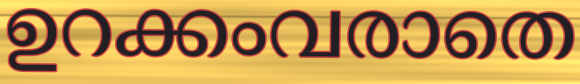
ഉറക്കംവരാതെ